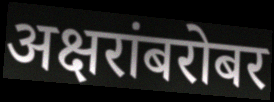
अक्षरांबरोबर